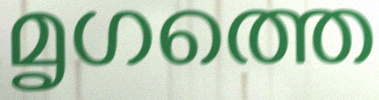
മൃഗത്തെ